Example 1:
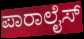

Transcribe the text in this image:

ಪಾರಾಲೈಸ್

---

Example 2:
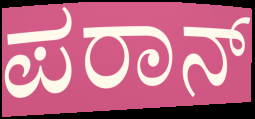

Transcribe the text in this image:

ಪರಾನ್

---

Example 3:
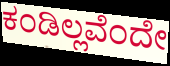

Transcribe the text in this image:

ಕಂಡಿಲ್ಲವೆಂದೇ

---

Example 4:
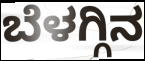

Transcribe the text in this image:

ಬೆಳಗ್ಗಿನ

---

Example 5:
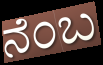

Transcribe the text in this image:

ನೆಂಬ